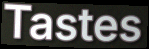
Tastes